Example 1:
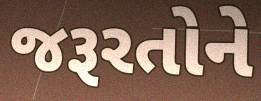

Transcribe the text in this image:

જરૂરતોને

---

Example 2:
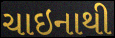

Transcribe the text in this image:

ચાઇનાથી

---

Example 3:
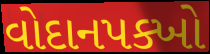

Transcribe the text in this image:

વોદાનપક્ખો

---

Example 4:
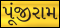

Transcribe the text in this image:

પૂંજીરામ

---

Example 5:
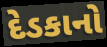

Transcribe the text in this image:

દેડકાનો